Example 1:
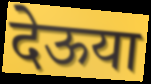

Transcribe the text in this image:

देऊया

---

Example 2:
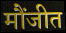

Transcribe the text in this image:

मौंजीत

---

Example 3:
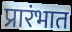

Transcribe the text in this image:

प्रारंभात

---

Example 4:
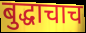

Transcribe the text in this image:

बुद्धाचाच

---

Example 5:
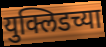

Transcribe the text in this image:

युक्लिडच्या